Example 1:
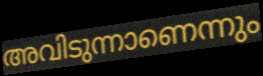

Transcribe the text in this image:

അവിടുന്നാണെന്നും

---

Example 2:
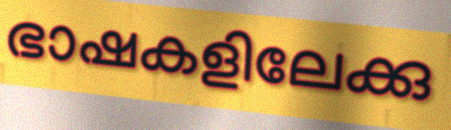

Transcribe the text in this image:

ഭാഷകളിലേക്കു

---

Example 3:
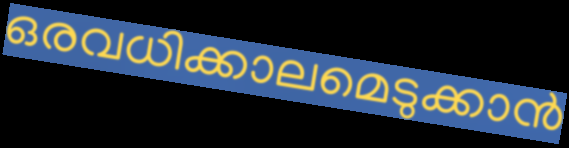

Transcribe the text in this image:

ഒരവധിക്കാലമെടുക്കാൻ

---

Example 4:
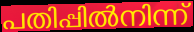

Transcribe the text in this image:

പതിപ്പിൽനിന്ന്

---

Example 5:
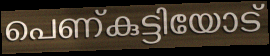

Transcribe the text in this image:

പെണ്കുട്ടിയോട്